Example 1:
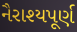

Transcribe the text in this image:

નૈરાશ્યપૂર્ણ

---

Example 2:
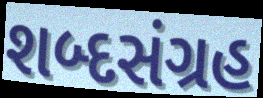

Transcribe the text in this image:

શબ્દસંગ્રહ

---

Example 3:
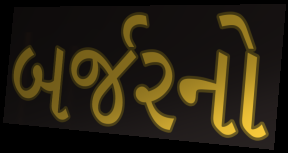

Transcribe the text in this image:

બર્જરનો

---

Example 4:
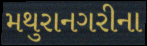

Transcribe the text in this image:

મથુરાનગરીના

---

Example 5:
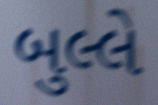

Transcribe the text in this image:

બુલ્લે